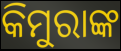
କିମୁରାଙ୍କ